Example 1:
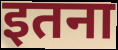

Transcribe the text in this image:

इतना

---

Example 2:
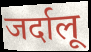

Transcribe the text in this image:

जर्दालू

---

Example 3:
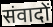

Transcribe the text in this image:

संवादों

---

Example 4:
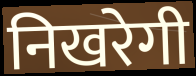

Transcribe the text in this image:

निखरेगी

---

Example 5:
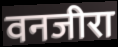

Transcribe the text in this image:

वनजीरा